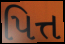
પિત્ત